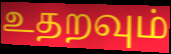
உதறவும்